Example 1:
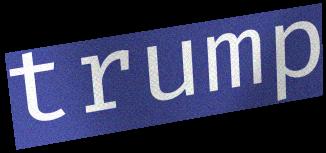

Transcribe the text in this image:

trump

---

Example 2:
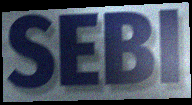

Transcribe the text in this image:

SEBI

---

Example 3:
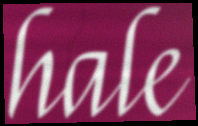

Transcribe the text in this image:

hale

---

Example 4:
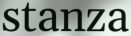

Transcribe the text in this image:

stanza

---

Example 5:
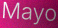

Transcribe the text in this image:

Mayo